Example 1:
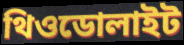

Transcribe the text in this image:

থিওডোলাইট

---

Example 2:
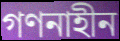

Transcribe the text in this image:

গণনাহীন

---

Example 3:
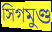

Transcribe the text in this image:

সিগমুণ্ড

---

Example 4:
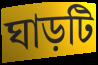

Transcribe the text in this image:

ঘাড়টি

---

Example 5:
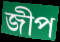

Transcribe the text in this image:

জীপ